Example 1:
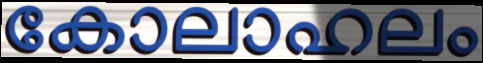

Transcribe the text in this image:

കോലാഹലം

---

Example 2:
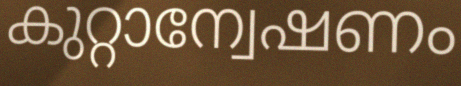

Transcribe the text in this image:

കുറ്റാന്വേഷണം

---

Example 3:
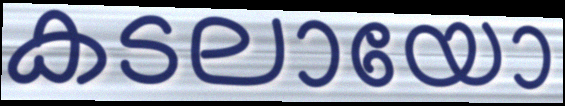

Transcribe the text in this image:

കടലായോ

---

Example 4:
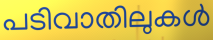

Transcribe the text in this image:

പടിവാതിലുകൾ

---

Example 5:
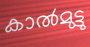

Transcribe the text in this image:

കാൽമുട്ടു